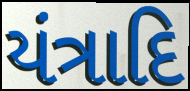
યંત્રાદિ